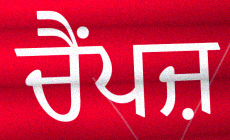
ਚੈਂਪਜ਼